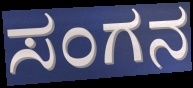
ಸಂಗನ